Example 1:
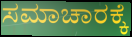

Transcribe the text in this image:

ಸಮಾಚಾರಕ್ಕೆ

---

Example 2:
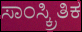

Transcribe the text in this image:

ಸಾಂಸ್ಕ್ರಿತಿಕ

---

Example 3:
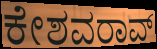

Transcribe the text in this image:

ಕೇಶವರಾವ್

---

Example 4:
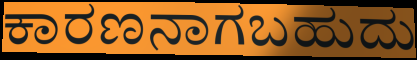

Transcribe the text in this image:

ಕಾರಣನಾಗಬಹುದು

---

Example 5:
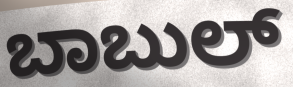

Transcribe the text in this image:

ಬಾಬುಲ್